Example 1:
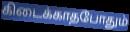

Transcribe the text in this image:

கிடைக்காதபோதும்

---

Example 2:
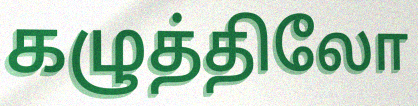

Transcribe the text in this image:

கழுத்திலோ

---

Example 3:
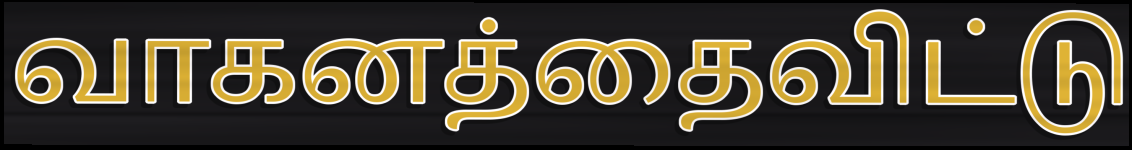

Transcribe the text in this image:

வாகனத்தைவிட்டு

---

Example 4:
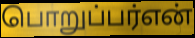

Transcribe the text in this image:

பொறுப்பர்என்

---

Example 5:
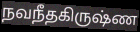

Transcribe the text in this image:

நவநீதகிருஷ்ண